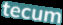
tecum